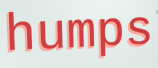
humps